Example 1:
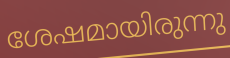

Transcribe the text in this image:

ശേഷമായിരുന്നു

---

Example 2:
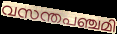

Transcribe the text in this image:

വസന്തപഞ്ചമി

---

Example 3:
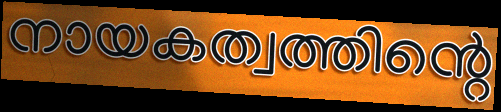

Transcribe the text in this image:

നായകത്വത്തിന്റെ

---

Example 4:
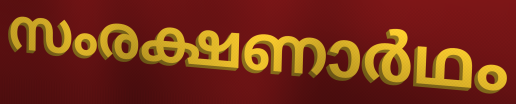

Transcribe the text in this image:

സംരക്ഷണാർഥം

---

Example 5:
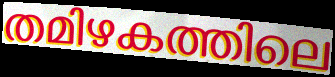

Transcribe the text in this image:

തമിഴകത്തിലെ